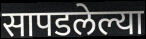
सापडलेल्‍या